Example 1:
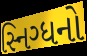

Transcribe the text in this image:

સ્નિગ્ધનો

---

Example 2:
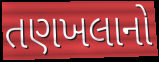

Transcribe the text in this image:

તણખલાનો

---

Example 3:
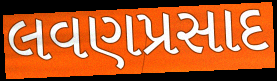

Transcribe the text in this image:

લવણપ્રસાદ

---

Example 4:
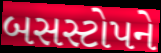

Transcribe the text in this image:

બસસ્ટોપને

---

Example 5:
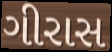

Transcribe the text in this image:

ગીરાસ